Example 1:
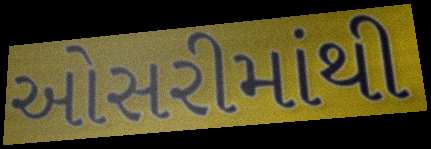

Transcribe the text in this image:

ઓસરીમાંથી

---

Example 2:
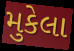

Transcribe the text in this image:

મુકેલા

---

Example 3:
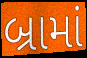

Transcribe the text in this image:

બ્રામાં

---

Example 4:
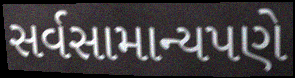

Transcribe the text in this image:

સર્વસામાન્યપણે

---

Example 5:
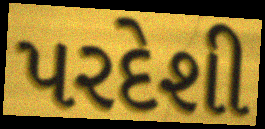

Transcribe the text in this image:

પરદેશી